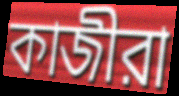
কাজীরা